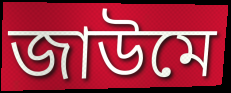
জাউমে